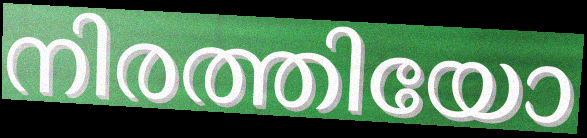
നിരത്തിയോ